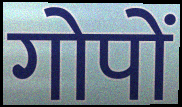
गोपों